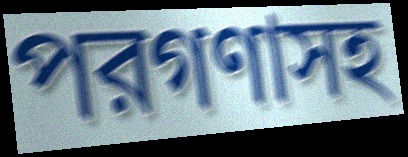
পরগণাসহ